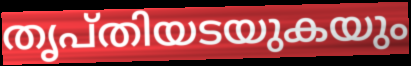
തൃപ്തിയടയുകയും